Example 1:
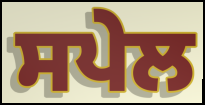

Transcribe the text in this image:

ਸਪੇਲ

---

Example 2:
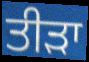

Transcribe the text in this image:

ਤੀੜਾ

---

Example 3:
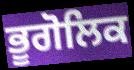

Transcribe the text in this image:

ਭੂਗੋਲਿਕ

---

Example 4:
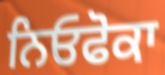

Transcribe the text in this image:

ਨਿਓਫੋਕਾ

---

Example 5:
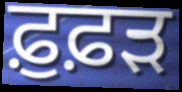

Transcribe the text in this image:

ਫ਼ੁਫ਼ੜ